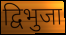
द्विभुजा